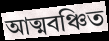
আত্মবঞ্চিত